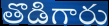
తొడిగారు